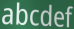
abcdef